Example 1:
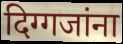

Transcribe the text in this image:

दिग्गजांना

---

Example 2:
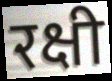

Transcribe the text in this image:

रक्षी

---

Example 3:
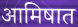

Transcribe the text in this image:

आमिषात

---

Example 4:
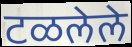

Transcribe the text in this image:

टळलेले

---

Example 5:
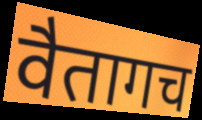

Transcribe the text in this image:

वैतागच